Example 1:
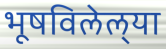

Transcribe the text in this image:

भूषविलेल्या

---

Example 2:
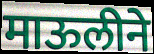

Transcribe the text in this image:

माऊलीने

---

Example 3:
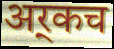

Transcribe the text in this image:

अर्कच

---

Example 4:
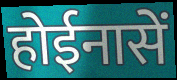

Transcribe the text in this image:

होईनासें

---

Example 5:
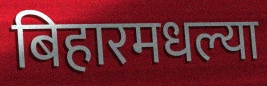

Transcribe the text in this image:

बिहारमधल्या